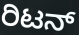
ರಿಟನ್